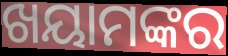
ଖୟାମଙ୍କର